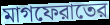
মাগফেরাতের